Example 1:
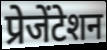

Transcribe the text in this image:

प्रेजेंटेशन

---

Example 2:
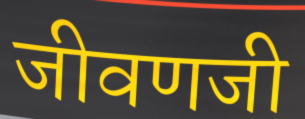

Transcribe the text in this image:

जीवणजी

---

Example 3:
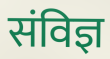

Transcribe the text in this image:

संविज्ञ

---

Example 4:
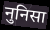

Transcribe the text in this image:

नुनिसा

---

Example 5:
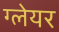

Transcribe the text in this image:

ग्लेयर